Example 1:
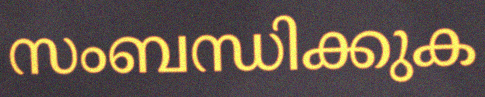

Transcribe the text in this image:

സംബന്ധിക്കുക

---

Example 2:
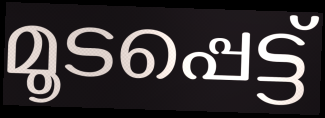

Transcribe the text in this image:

മൂടപ്പെട്ട്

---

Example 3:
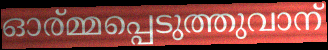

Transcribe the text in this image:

ഓര്മ്മപ്പെടുത്തുവാന്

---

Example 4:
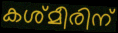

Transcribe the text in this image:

കശ്മീരിന്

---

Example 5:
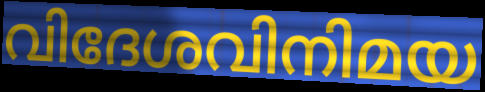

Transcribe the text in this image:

വിദേശവിനിമയ